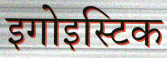
इगोइस्टिक